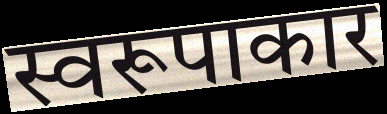
स्वरूपाकार